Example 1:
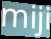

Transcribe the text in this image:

miji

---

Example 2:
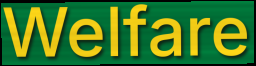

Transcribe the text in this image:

Welfare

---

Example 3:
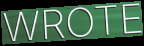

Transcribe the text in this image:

WROTE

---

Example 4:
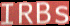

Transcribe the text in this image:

IRBs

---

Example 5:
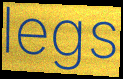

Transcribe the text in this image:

legs